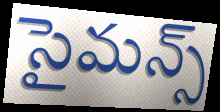
సైమన్స్